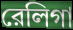
রেলিগা